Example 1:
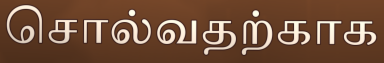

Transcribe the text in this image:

சொல்வதற்காக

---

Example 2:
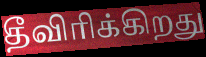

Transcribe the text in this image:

தீவிரிக்கிறது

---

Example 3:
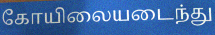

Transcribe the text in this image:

கோயிலையடைந்து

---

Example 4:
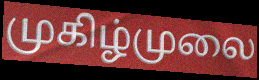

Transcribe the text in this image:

முகிழ்முலை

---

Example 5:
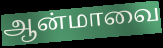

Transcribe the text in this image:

ஆன்மாவை